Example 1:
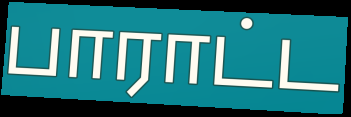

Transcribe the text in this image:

பாராட்ட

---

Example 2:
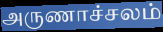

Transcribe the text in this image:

அருணாச்சலம்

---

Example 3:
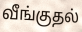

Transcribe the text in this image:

வீங்குதல்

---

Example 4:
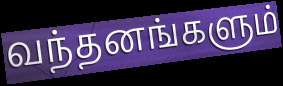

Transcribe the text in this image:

வந்தனங்களும்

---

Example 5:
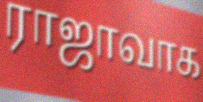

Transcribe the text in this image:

ராஜாவாக